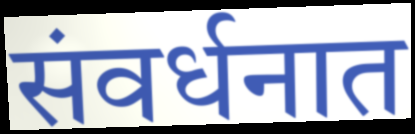
संवर्धनात